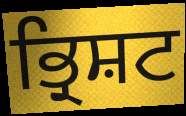
ਭ੍ਰਿਸ਼ਟ